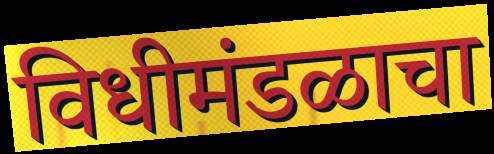
विधीमंडळाचा